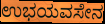
ಉಭಯವಸೇನ